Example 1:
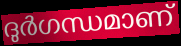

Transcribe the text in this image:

ദുർഗന്ധമാണ്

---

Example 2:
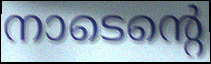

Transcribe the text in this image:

നാടെന്റെ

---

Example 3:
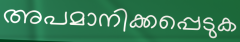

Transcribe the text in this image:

അപമാനിക്കപ്പെടുക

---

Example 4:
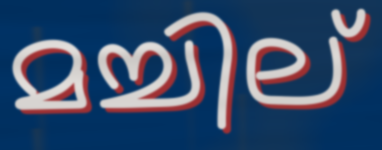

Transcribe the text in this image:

മച്ചില്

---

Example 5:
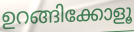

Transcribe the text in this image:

ഉറങ്ങിക്കോളൂ